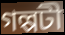
গল্পটী